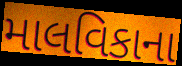
માલવિકાના